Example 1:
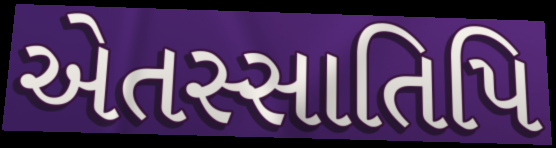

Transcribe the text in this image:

એતસ્સાતિપિ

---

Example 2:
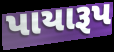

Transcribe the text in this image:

પાયારૂપ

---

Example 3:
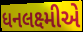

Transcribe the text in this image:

ધનલક્ષ્મીએ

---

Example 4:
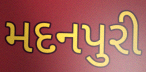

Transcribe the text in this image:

મદનપુરી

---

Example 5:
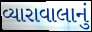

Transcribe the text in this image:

વ્યારાવાલાનું